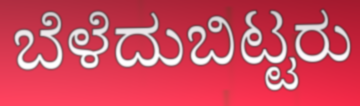
ಬೆಳೆದುಬಿಟ್ಟರು